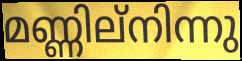
മണ്ണില്നിന്നു